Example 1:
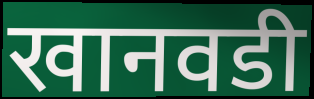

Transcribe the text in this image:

खानवडी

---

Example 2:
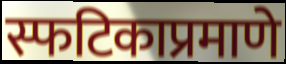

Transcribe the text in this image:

स्फटिकाप्रमाणे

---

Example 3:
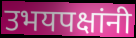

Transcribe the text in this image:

उभयपक्षांनी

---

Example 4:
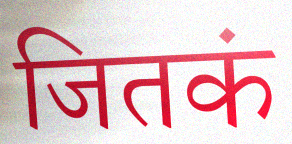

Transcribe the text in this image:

जितकं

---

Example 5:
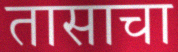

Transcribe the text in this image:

तासाचा